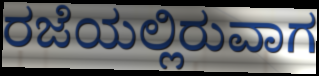
ರಜೆಯಲ್ಲಿರುವಾಗ